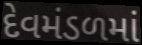
દેવમંડળમાં